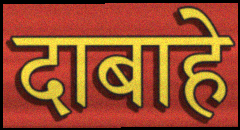
दाबाहे